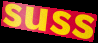
suss